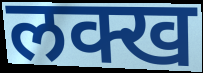
लक्ख